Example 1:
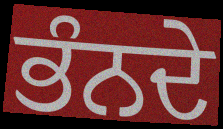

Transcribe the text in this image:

ਭੰਨਦੇ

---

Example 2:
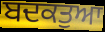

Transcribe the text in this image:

ਬਦਕਤੁਆ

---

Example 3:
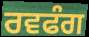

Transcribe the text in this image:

ਰਵਫੰਗ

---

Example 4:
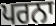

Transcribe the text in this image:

ਪਰਨਾ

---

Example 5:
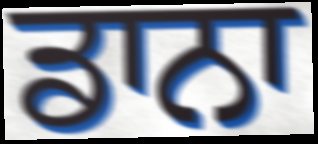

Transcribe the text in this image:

ਡਾਨਾ